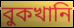
বুকখানি